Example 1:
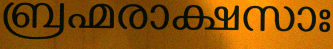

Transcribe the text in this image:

ബ്രഹ്മരാക്ഷസാഃ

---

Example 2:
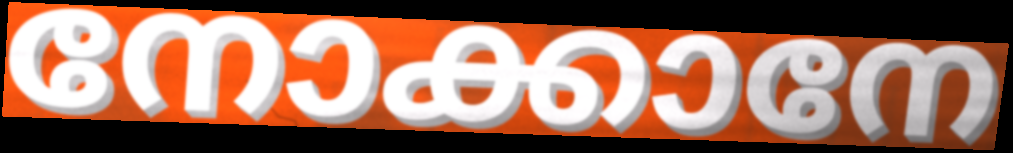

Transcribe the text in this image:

നോക്കാനേ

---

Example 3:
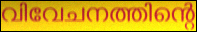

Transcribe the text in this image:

വിവേചനത്തിന്റെ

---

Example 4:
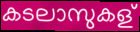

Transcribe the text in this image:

കടലാസുകള്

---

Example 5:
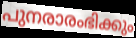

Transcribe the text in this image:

പുനരാരംഭിക്കും